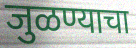
जुळण्याचा